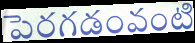
పెరగడంవంటి